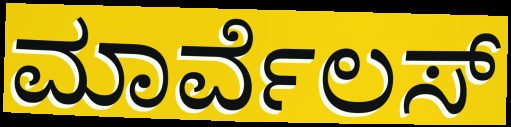
ಮಾರ್ವೆಲಸ್